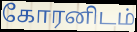
கோரனிடம்